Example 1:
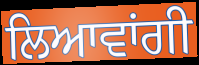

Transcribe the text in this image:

ਲਿਆਵਾਂਗੀ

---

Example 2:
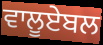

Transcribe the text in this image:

ਵਾਲੂਏਬਲ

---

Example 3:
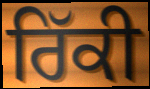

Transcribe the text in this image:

ਰਿੱਕੀ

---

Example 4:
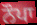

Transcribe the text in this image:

ਨੌਪਾ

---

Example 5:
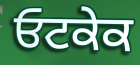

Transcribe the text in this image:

ਓਟਕੇਕ